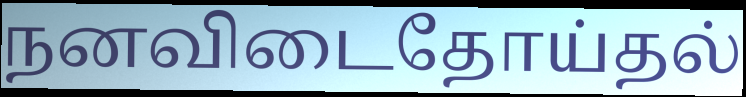
நனவிடைதோய்தல்